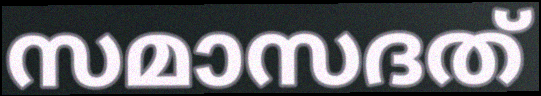
സമാസദത്